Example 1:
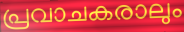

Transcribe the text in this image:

പ്രവാചകരാലും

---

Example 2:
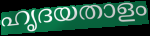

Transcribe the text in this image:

ഹൃദയതാളം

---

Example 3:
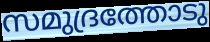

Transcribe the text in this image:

സമുദ്രത്തോടു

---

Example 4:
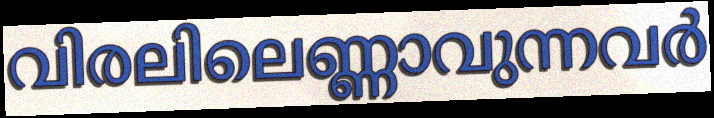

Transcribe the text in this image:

വിരലിലെണ്ണാവുന്നവർ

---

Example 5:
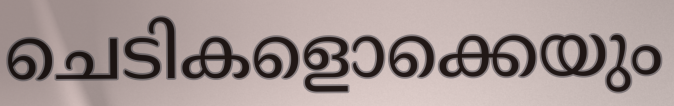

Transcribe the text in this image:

ചെടികളൊക്കെയും